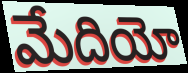
మేదియో